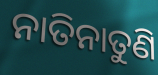
ନାତିନାତୁଣି